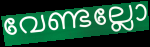
വേണ്ടല്ലോ